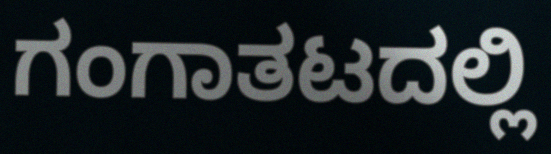
ಗಂಗಾತಟದಲ್ಲಿ